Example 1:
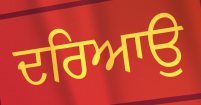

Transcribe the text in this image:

ਦਰਿਆਉ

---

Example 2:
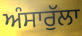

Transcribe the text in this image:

ਅੰਸਾਰੁੱਲਾ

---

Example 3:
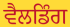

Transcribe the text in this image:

ਵੈਲਡਿੰਗ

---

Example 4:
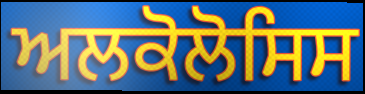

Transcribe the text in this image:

ਅਲਕੋਲੋਸਿਸ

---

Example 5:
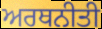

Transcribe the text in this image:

ਅਰਥਨੀਤੀ